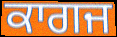
ਕਾਗਜ